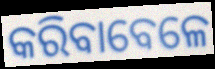
କରିବାବେଳେ